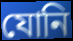
যোনি